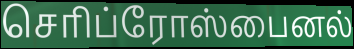
செரிப்ரோஸ்பைனல்